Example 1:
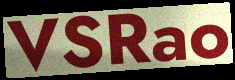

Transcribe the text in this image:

VSRao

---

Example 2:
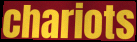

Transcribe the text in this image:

chariots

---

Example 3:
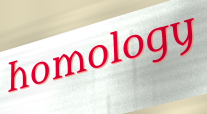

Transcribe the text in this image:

homology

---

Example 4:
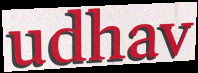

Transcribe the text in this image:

udhav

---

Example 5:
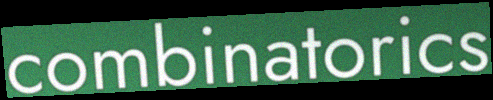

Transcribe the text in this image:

combinatorics